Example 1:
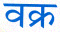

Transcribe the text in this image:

वक्र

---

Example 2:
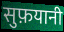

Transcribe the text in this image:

सुफ़यानी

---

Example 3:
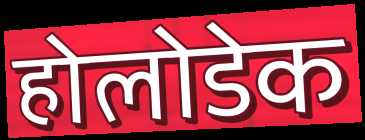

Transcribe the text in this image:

होलोडेक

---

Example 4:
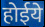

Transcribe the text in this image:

होईये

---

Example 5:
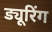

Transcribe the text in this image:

ड्यूरिंग